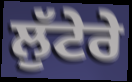
ਲੁੱਟੇਰੇ